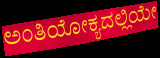
ಅಂತಿಯೋಕ್ಯದಲ್ಲಿಯೇ